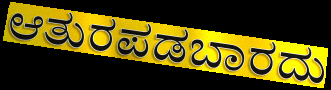
ಆತುರಪಡಬಾರದು